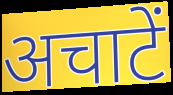
अचाटें